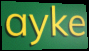
ayke